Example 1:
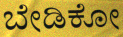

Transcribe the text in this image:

ಬೇಡಿಕೋ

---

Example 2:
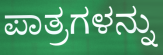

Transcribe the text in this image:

ಪಾತ್ರಗಳನ್ನು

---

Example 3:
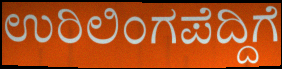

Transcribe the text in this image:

ಉರಿಲಿಂಗಪೆದ್ದಿಗೆ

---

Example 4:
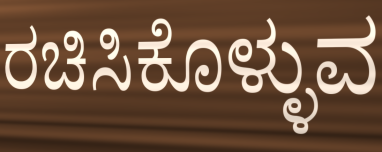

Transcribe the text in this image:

ರಚಿಸಿಕೊಳ್ಳುವ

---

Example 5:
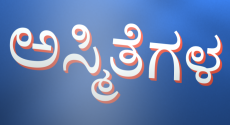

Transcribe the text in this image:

ಅಸ್ಮಿತೆಗಳ